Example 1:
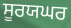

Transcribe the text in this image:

ਸੂਰਯਘਰ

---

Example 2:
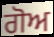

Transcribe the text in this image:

ਗੋਅ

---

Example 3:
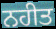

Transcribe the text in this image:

ਨਹੀਤ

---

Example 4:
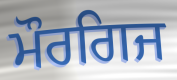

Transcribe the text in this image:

ਮੌਰਗਿਜ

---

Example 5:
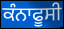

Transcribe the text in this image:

ਕੰਨਾਫੂਸੀ